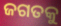
ଜଗତକୁ